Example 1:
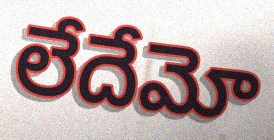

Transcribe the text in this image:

లేదేమో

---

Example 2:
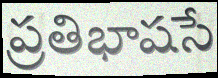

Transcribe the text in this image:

ప్రతిభాషసే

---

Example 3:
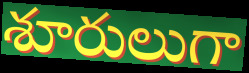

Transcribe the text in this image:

శూరులుగా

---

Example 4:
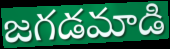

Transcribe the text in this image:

జగడమాడి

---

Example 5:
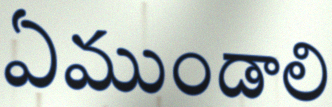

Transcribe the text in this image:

ఏముండాలి